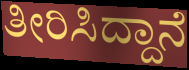
ತೀರಿಸಿದ್ದಾನೆ